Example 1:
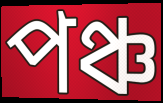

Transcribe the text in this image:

পঞ্চ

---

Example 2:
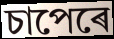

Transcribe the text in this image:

চাপেৰে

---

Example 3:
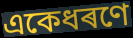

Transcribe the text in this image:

একেধৰণে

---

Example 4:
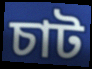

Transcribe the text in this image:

চাট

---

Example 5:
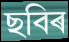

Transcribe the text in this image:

ছবিৰ